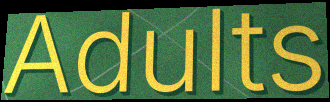
Adults